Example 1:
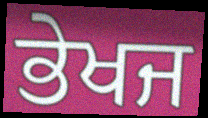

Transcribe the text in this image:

ਭੇਖਜ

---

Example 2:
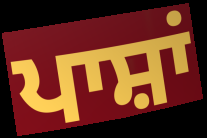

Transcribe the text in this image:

ਪਾਸ਼ਾਂ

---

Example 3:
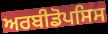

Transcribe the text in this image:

ਅਰਬੀਡੋਪਸਿਸ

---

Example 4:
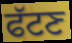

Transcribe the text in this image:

ਫੱਟਣ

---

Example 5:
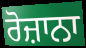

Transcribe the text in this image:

ਰੋਜ਼ਾਨਾ